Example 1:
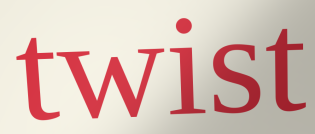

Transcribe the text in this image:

twist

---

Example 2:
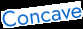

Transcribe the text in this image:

Concave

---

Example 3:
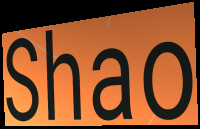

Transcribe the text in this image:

Shao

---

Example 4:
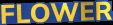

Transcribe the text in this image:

FLOWER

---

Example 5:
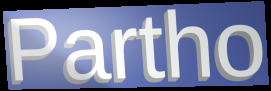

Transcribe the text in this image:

Partho